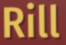
Rill